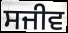
ਸਜੀਵ